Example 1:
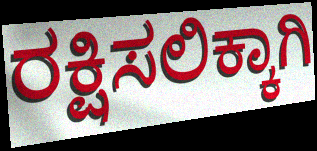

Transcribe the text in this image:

ರಕ್ಷಿಸಲಿಕ್ಕಾಗಿ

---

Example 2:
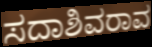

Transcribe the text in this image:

ಸದಾಶಿವರಾವ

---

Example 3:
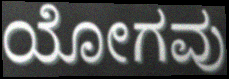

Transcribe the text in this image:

ಯೋಗವು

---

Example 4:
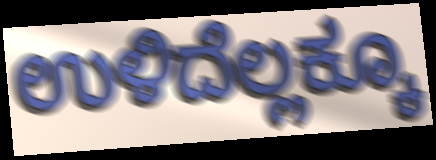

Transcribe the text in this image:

ಉಳಿದೆಲ್ಲಕ್ಕೂ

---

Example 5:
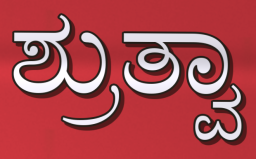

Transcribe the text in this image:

ಶ್ರುತ್ವಾ